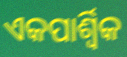
ଏକପାର୍ଶ୍ୱିକ